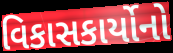
વિકાસકાર્યોનો